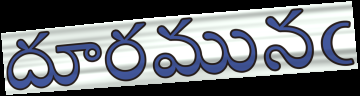
దూరమునఁ